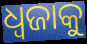
ଧ୍ୱଜାକୁ